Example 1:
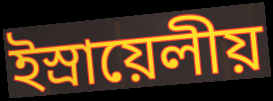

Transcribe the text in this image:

ইস্রায়েলীয়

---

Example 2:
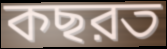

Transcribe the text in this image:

কছরত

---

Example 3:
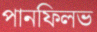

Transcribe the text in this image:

পানফিলভ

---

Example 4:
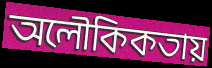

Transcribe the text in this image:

অলৌকিকতায়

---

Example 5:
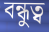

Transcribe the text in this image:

বন্ধুত্ব